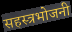
सहस्त्रभोजनी